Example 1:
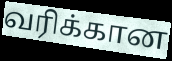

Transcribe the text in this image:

வரிக்கான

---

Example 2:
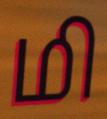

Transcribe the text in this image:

மி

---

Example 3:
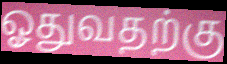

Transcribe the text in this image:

ஓதுவதற்கு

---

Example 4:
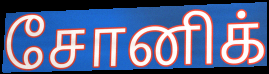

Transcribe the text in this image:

சோனிக்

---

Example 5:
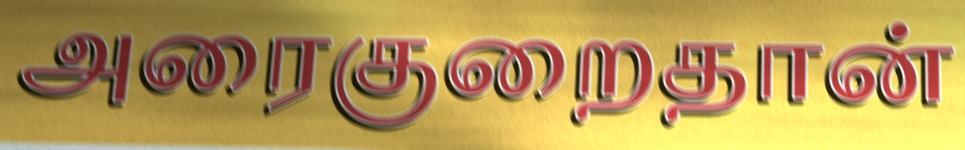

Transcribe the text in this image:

அரைகுறைதான்